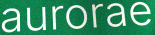
aurorae